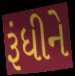
રૂંધીને